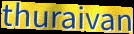
thuraivan